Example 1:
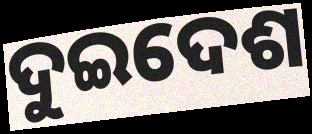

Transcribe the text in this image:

ଦୁଇଦେଶ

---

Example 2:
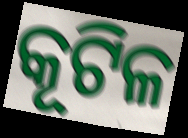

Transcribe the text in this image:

କୂଟିଳ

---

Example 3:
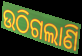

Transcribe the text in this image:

ଉଠିଗଲାଣି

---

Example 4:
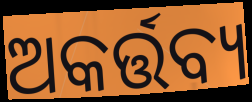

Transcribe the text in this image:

ଅକର୍ତ୍ତବ୍ୟ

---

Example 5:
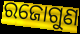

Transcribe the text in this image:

ରଜୋଗୁଣ